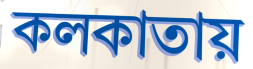
কলকাতায়